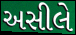
અસીલે